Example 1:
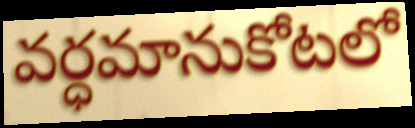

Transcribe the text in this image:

వర్ధమానుకోటలో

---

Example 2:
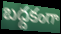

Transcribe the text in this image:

బద్దకంగా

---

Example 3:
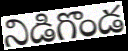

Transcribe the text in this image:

నిడిగొండ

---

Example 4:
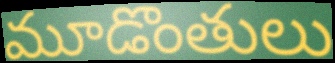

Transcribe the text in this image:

మూడొంతులు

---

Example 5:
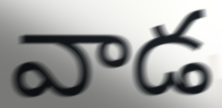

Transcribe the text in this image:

వాడ